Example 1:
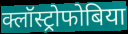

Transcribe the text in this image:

क्लॉस्ट्रोफोबिया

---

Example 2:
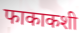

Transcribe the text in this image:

फाकाकशी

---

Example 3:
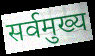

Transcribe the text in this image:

सर्वमुख्य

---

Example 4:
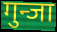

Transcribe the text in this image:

गुन्जा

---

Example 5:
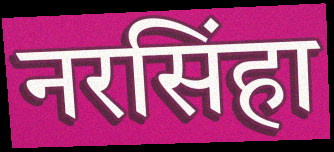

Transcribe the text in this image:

नरसिंहा